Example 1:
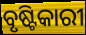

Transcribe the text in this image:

ବୃଷ୍ଟିକାରୀ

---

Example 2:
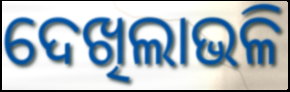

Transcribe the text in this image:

ଦେଖିଲାଭଳି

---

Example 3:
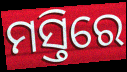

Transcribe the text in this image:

ମସ୍ତିରେ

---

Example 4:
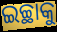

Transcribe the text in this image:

ଇଚ୍ଛାକୁ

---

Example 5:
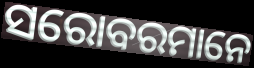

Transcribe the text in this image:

ସରୋବରମାନେ